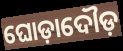
ଘୋଡ଼ାଦୌଡ଼